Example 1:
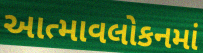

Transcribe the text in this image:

આત્માવલોકનમાં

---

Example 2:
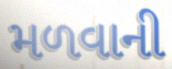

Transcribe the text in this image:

મળવાની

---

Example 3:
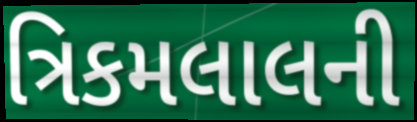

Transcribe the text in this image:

ત્રિકમલાલની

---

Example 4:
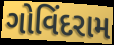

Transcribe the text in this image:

ગોવિંદરામ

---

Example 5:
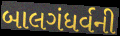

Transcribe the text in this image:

બાલગંધર્વની